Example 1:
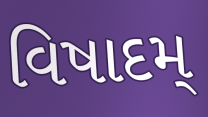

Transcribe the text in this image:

વિષાદમ્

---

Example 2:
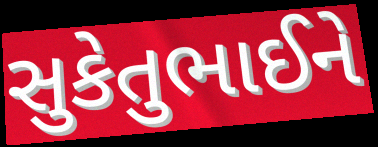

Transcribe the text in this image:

સુકેતુભાઈને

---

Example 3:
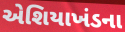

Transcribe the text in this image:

એશિયાખંડના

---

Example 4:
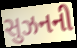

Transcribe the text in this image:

સુઝનની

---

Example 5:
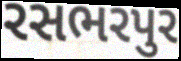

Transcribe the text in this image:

રસભરપુર